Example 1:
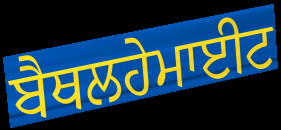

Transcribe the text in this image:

ਬੈਥਲਹੇਮਾਈਟ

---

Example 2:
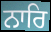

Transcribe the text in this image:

ਨਾਰਿ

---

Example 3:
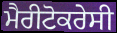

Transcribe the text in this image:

ਮੈਰੀਟੋਕਰੇਸੀ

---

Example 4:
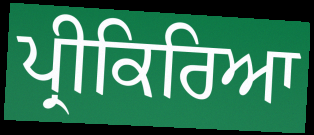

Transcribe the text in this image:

ਪ੍ਰੀਕਿਰਿਆ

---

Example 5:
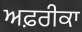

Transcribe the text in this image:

ਅਫ਼ਰੀਕਾ